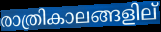
രാത്രികാലങ്ങളില്